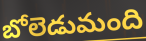
బోలెడుమంది